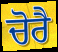
ਚੋਰੈ